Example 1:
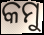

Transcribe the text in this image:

କମୁ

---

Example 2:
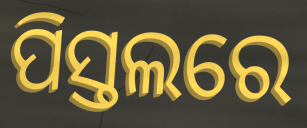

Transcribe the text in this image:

ପିସ୍ତଲରେ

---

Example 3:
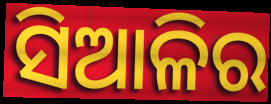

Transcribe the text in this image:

ସିଆଳିର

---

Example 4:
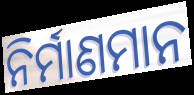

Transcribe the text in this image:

ନିର୍ମାଣମାନ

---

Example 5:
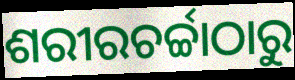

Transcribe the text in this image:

ଶରୀରଚର୍ଚ୍ଚାଠାରୁ